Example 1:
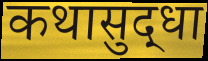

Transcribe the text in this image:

कथासुद्धा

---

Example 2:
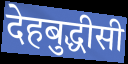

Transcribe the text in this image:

देहबुद्धीसी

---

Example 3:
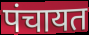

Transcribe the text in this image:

पंचायत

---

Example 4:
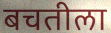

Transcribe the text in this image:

बचतीला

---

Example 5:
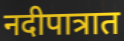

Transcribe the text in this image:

नदीपात्रात